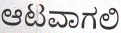
ಆಟವಾಗಲಿ